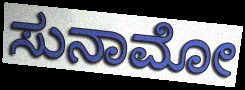
ಸುನಾಮೋ